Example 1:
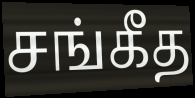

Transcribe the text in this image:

சங்கீத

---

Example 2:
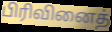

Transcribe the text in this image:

பிரிவினைத்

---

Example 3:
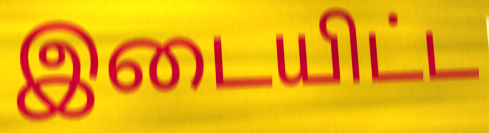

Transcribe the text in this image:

இடையிட்ட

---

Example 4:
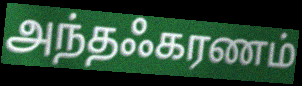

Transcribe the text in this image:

அந்தஃகரணம்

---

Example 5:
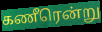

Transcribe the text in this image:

கணீரென்று